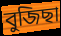
বুজিছা